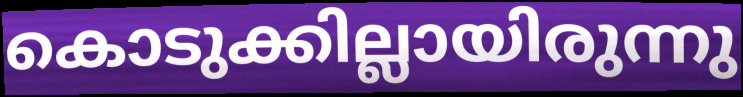
കൊടുക്കില്ലായിരുന്നു